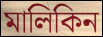
মালিকিন